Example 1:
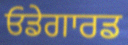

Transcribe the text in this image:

ਓਡੇਗਾਰਡ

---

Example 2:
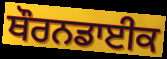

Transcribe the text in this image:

ਥੌਰਨਡਾਈਕ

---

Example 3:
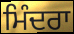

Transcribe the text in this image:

ਮਿੰਦਰਾ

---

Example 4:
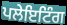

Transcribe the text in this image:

ਪਲੇਇਟਿੰਗ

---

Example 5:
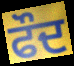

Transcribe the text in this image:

ਫੌਦ